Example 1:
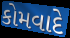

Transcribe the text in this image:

કોમવાદે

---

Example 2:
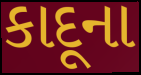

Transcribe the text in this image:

કાદૂના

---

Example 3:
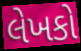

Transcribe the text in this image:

લેખકો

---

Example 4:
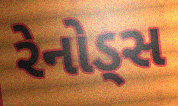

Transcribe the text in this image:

રેનોડ્સ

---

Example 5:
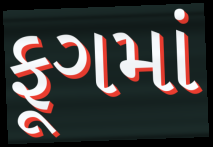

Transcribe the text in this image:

ફૂગમાં